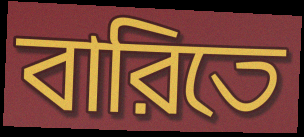
বারিতে